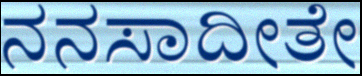
ನನಸಾದೀತೇ